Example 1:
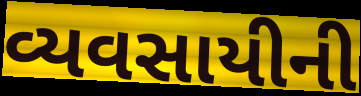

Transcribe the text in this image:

વ્યવસાયીની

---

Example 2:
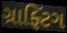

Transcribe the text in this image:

ગ્રાફ્ટિંગ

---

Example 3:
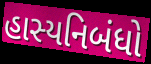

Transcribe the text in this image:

હાસ્યનિબંધો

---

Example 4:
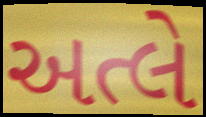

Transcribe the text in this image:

અત્લે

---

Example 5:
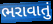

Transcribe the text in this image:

ભરાવાતું